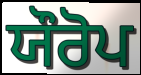
ਯੌਰੋਪ